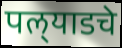
पल्याडचे